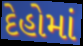
દેહોમાં